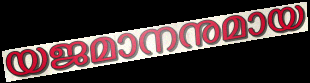
യജമാനനുമായ